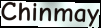
Chinmay